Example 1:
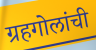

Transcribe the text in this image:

ग्रहगोलांची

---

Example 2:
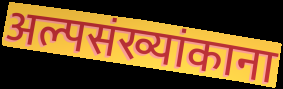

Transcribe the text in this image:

अल्पसंख्यांकाना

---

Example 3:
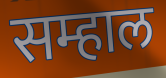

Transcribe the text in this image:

सम्हाल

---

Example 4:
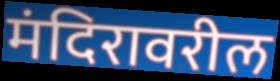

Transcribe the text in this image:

मंदिरावरील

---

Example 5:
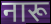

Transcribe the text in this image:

नारू